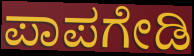
ಪಾಪಗೇಡಿ